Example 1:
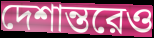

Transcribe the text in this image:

দেশান্তরেও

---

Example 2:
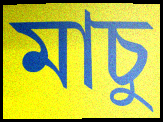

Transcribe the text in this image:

মাচু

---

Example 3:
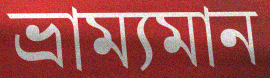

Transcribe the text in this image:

ভ্রাম্যমান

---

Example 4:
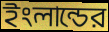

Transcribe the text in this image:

ইংলান্ডের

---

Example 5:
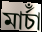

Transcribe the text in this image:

মার্চাঁ